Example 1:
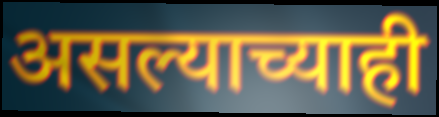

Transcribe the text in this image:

असल्याच्याही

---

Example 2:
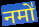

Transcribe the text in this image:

नमो॑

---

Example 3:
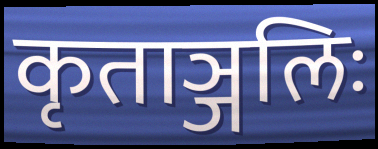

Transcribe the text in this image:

कृताञ्जलिः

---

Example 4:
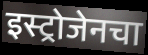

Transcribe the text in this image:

इस्ट्रोजेनचा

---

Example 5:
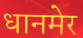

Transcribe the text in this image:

धानमेर